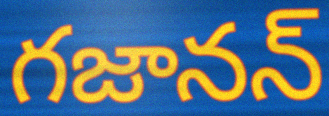
గజానన్